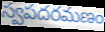
స్వపదరమణం